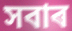
সবাৰ